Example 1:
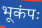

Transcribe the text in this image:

भूकंपः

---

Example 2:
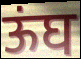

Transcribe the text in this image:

ऊंघ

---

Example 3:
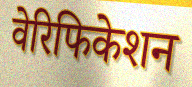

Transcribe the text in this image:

वेरिफिकेशन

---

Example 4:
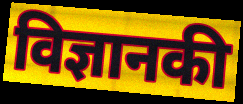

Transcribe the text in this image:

विज्ञानकी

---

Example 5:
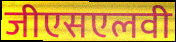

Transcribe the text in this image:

जीएसएलवी